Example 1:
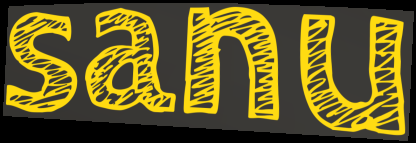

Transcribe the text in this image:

sanu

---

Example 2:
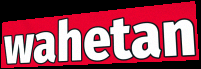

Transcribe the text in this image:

wahetan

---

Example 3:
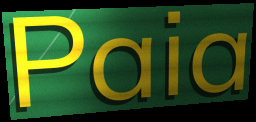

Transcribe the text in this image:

Paia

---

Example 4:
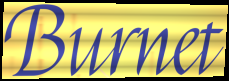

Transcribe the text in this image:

Burnet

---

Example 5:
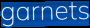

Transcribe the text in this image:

garnets